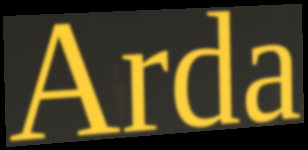
Arda